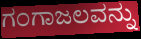
ಗಂಗಾಜಲವನ್ನು